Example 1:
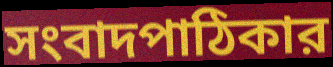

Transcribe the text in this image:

সংবাদপাঠিকার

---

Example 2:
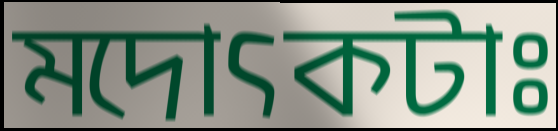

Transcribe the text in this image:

মদোৎকটাঃ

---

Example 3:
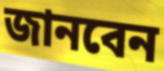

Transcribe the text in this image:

জানবেন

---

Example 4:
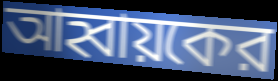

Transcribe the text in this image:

আহ্বায়কের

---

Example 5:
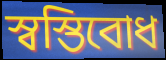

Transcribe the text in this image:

স্বস্তিবোধ